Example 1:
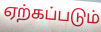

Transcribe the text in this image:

ஏற்கப்படும்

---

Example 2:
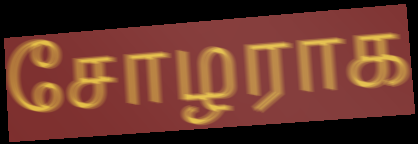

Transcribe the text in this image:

சோழராக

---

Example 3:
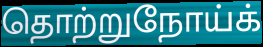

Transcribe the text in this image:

தொற்றுநோய்க்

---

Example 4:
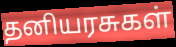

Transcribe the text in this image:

தனியரசுகள்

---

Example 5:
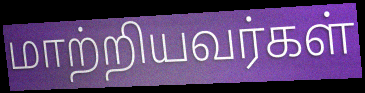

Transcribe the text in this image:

மாற்றியவர்கள்